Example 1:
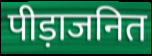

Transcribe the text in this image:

पीड़ाजनित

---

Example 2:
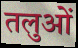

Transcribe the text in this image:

तलुओं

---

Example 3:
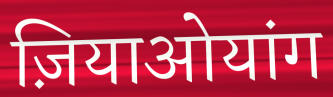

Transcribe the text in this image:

ज़ियाओयांग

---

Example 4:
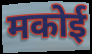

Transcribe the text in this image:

मकोई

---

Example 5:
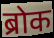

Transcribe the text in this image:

ब्रोक